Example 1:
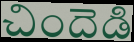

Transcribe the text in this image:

చిందెడి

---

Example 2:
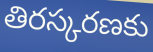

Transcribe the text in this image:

తిరస్కరణకు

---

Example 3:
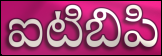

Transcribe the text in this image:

ఐటిబిపి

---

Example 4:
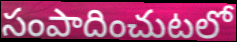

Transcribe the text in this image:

సంపాదించుటలో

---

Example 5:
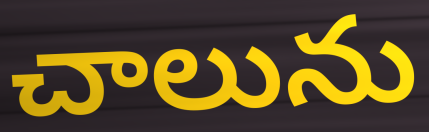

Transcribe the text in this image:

చాలును